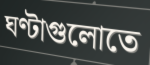
ঘণ্টাগুলোতে